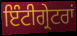
ਇੰਟੀਗ੍ਰੇਟਰਾਂ